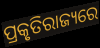
ପ୍ରକୃତିରାଜ୍ୟରେ